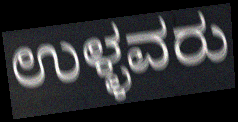
ಉಳ್ಳವರು